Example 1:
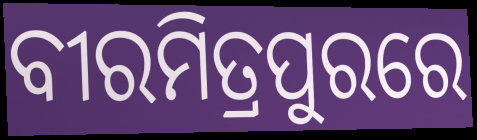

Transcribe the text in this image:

ବୀରମିତ୍ରପୁରରେ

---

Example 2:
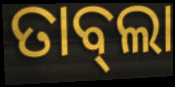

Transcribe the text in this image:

ତାବ୍‌ଲା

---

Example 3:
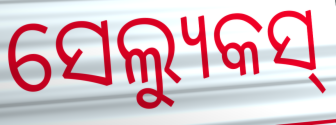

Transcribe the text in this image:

ସେଲ୍ୟୁକସ୍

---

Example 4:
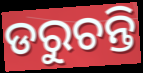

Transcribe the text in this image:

ଡରୁଚନ୍ତି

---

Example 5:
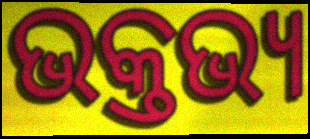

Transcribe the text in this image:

ଭକ୍ତଭ୍ୟ